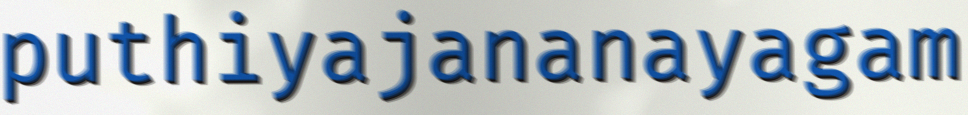
puthiyajananayagam